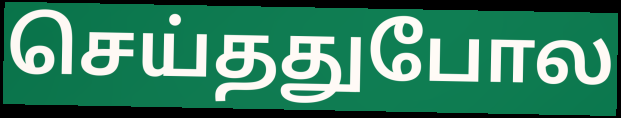
செய்ததுபோல